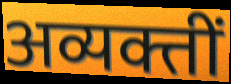
अव्यक्तीं